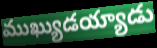
ముఖ్యుడయ్యాడు